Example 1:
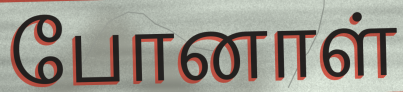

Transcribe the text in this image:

போனாள்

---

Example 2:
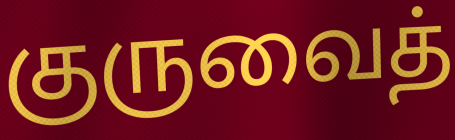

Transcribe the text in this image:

குருவைத்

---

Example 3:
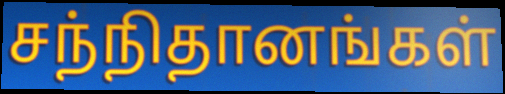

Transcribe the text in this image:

சந்நிதானங்கள்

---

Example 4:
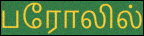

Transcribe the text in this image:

பரோலில்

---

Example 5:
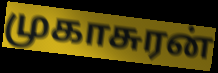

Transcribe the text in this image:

முகாசுரன்